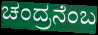
ಚಂದ್ರನೆಂಬ